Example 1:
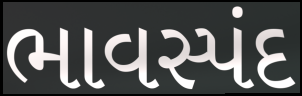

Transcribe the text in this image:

ભાવસ્પંદ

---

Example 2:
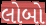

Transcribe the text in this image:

લોબો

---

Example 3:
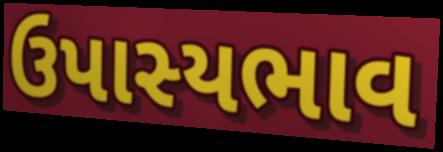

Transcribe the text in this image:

ઉપાસ્યભાવ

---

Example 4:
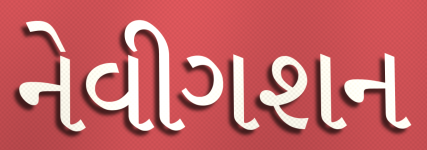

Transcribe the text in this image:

નેવીગશન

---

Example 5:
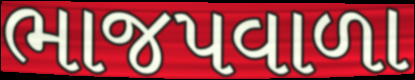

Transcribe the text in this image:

ભાજપવાળા